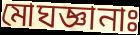
মোঘজ্ঞানাঃ